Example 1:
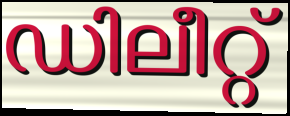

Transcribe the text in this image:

ഡിലീറ്റ്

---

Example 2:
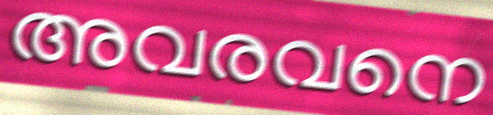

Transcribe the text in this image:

അവരവനെ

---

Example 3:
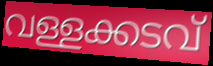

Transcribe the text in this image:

വള്ളക്കടവ്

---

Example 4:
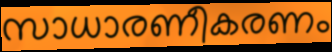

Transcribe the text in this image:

സാധാരണീകരണം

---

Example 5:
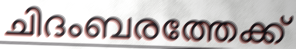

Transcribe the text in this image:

ചിദംബരത്തേക്ക്